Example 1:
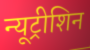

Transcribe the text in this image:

न्यूट्रीशिन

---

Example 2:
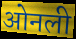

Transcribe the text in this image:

ओनली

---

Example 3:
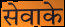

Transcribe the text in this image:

सेवाके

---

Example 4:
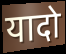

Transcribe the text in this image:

यादो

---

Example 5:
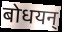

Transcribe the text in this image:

बोधयन्